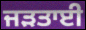
ਜੜਤਾਈ